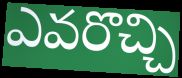
ఎవరొచ్చి